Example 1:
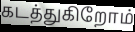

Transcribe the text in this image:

கடத்துகிறோம்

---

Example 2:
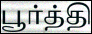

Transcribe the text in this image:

பூர்த்தி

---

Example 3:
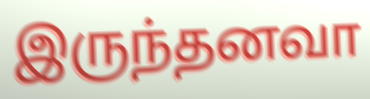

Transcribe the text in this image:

இருந்தனவா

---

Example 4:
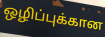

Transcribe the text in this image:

ஒழிப்புக்கான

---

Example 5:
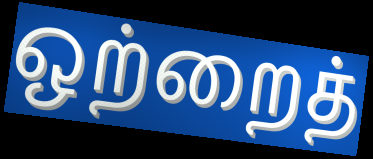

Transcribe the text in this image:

ஒற்றைத்